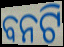
ବନଟି